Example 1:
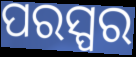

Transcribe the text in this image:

ପରସ୍ପର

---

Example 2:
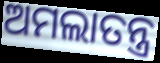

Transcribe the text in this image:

ଅମଲାତନ୍ତ୍ର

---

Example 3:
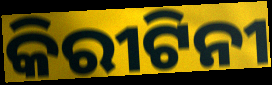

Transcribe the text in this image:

କିରୀଟିନୀ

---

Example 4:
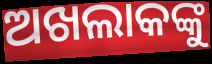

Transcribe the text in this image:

ଅଖଲାକଙ୍କୁ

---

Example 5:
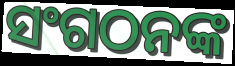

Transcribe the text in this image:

ସଂଗଠନଙ୍କ